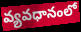
వ్యవధానంలో